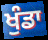
ਖੁੰਡਾ